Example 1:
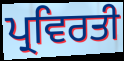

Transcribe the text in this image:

ਪ੍ਰਵਿਰਤੀ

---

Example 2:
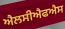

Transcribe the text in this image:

ਐਲਸੀਐਫਐਸ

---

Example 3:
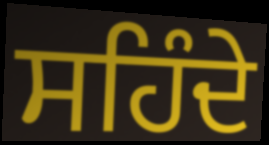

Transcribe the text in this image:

ਸਹਿੰਦੇ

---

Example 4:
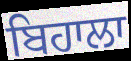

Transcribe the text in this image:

ਬਿਹਾਲਾ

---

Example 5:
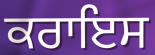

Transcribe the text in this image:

ਕਰਾਇਸ